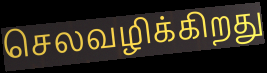
செலவழிக்கிறது